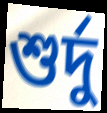
শুর্দু